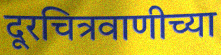
दूरचित्रवाणीच्या